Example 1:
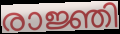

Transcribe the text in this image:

രാജ്ഞി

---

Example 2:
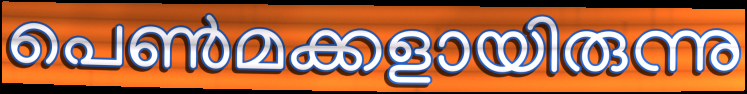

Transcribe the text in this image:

പെൺമക്കളായിരുന്നു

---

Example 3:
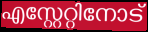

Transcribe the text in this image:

എസ്റ്റേറ്റിനോട്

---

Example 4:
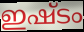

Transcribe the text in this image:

ഇഷ്ടം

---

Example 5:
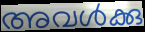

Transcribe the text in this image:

അവൾക്കു